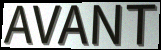
AVANT